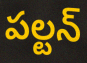
పల్టన్